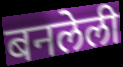
बनलेली